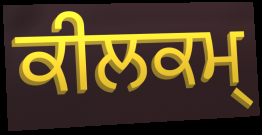
ਕੀਲਕਮ੍